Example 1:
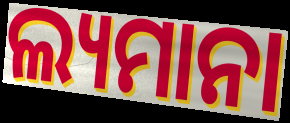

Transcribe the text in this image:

ଲ୍ୟମାନା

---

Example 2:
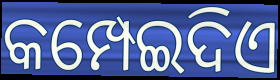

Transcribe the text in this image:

କମ୍ପେଇଦିଏ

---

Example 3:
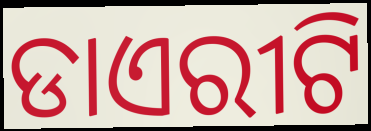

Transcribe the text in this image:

ଡାଏରୀଟି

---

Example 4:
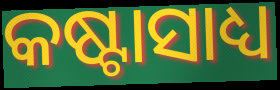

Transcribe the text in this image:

କଷ୍ଟାସାଧ୍ୟ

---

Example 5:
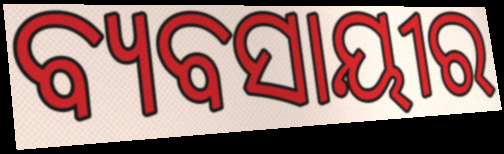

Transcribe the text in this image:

ବ୍ୟବସାୟୀର